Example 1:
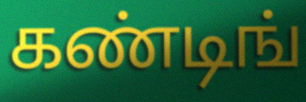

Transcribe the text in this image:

கண்டிங்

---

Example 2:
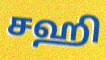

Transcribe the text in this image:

சஹி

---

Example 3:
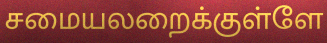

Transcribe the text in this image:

சமையலறைக்குள்ளே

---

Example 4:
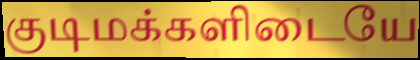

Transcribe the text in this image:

குடிமக்களிடையே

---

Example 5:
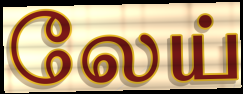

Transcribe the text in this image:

லேய்